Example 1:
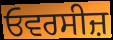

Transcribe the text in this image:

ਓਵਰਸੀਜ਼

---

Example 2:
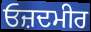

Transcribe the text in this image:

ਓਜ਼ਦਮੀਰ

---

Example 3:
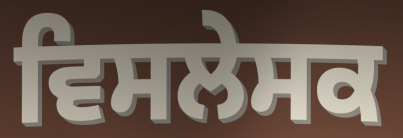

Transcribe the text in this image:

ਵਿਸਲੇਸਕ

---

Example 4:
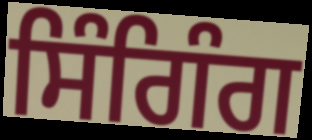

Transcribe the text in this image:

ਸਿੰਗਿੰਗ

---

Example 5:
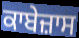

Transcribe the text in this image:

ਕਾਬੇਜ਼ਾਸ